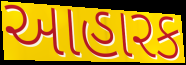
આહારક